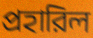
প্রহারিল